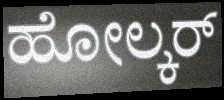
ಹೋಲ್ಕರ್